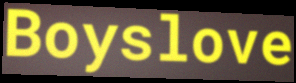
Boyslove